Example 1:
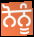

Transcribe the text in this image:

ਨੋਨੂੰ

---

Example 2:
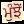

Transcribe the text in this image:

ਮੁੰਝੋਂ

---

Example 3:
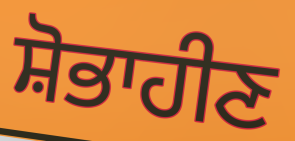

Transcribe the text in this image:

ਸ਼ੋਭਾਹੀਣ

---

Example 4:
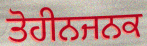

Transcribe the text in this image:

ਤੋਹੀਨਜਨਕ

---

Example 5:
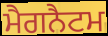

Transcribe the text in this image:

ਮੈਗਨੈਟਮ